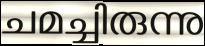
ചമച്ചിരുന്നു